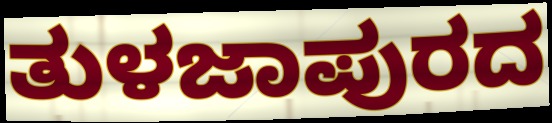
ತುಳಜಾಪುರದ